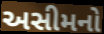
અસીમનો